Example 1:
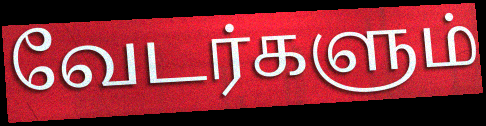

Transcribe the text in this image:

வேடர்களும்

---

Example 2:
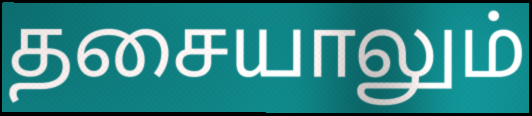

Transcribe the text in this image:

தசையாலும்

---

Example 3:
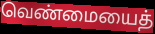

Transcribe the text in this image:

வெண்மையைத்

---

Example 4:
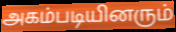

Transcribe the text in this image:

அகம்படியினரும்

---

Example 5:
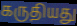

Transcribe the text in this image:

கருதியது